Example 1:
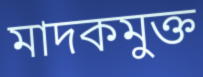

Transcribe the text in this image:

মাদকমুক্ত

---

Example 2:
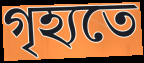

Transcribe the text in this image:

গৃহ্যতে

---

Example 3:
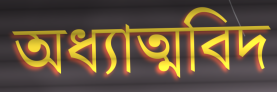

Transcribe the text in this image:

অধ্যাত্মবিদ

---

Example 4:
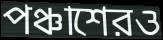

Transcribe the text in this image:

পঞ্চাশেরও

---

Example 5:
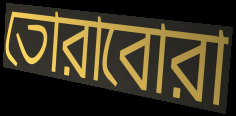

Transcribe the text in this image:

তোরাবোরা